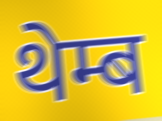
थेम्ब